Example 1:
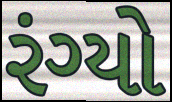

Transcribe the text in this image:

રંગ્યો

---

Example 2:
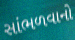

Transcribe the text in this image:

સાંભળવાનો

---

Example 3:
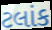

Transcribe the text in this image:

ટલાંક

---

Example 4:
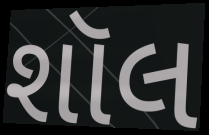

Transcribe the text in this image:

શૉલ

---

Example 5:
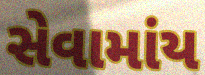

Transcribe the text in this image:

સેવામાંય